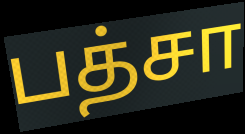
பத்சா